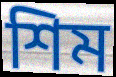
শিম